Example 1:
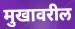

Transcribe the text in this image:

मुखावरील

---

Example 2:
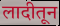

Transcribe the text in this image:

लादीतून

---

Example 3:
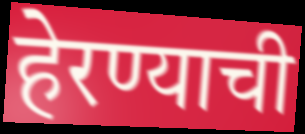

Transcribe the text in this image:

हेरण्याची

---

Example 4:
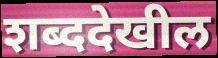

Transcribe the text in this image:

शब्ददेखील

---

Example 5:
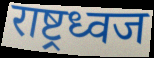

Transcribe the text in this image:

राष्ट्रध्वज